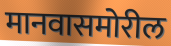
मानवासमोरील